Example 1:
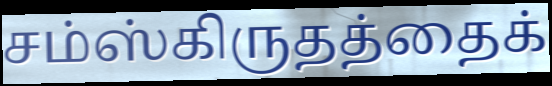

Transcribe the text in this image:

சம்ஸ்கிருதத்தைக்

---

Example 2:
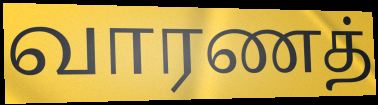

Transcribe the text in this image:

வாரணத்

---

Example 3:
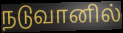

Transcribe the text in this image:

நடுவானில்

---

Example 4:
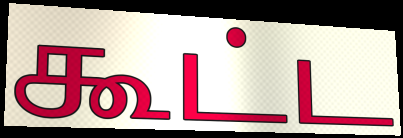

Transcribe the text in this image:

கூட்ட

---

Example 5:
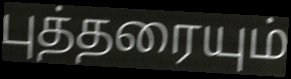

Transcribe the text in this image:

புத்தரையும்